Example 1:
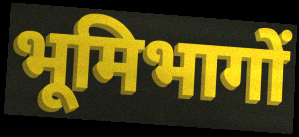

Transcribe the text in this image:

भूमिभागों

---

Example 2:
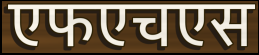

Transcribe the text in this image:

एफएचएस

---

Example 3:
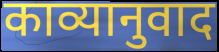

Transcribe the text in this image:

काव्यानुवाद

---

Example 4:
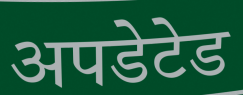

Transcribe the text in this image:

अपडेटेड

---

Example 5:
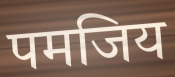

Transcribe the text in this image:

पमजिय